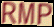
RMP